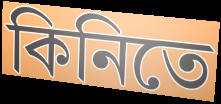
কিনিতে